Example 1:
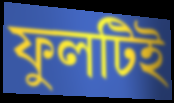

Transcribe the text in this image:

ফুলটিই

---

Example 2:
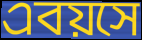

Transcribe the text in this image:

এবয়সে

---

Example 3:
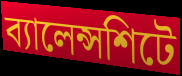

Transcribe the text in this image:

ব্যালেন্সশিটে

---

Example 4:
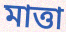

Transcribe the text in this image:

মাত্তা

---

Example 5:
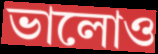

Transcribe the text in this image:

ভালোও